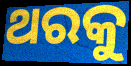
ଥରକୁ